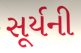
સૂર્યની